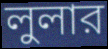
লুলার